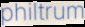
philtrum